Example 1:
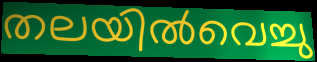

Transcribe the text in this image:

തലയിൽവെച്ചു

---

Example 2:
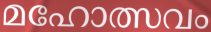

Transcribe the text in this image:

മഹോത്സവം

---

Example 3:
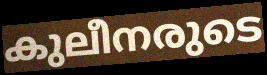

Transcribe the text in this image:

കുലീനരുടെ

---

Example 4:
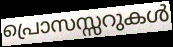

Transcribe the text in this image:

പ്രൊസസ്സറുകൾ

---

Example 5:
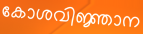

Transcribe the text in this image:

കോശവിജ്ഞാന